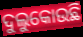
ଦୁଲୁକୋଉଛି